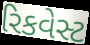
રિકવેસ્ટ